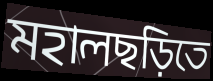
মহালছড়িতে